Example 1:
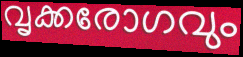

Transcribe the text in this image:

വൃക്കരോഗവും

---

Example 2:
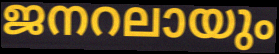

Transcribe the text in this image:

ജനറലായും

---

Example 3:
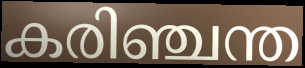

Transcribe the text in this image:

കരിഞ്ചന്ത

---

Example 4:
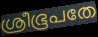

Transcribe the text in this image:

ശ്രീഭൂപതേ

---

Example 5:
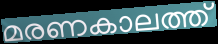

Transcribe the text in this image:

മരണകാലത്ത്